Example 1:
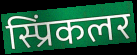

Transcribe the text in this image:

स्प्रिंकलर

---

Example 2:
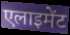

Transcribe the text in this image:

एलाइमेंट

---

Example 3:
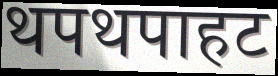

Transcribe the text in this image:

थपथपाहट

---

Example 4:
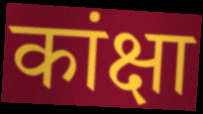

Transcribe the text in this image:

कांक्षा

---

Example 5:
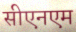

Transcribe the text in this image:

सीएनएम